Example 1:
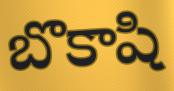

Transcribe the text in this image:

బొకాషి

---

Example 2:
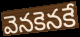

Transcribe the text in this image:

వెనకెనకే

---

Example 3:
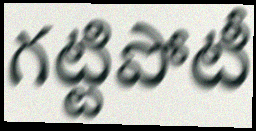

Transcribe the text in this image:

గట్టిపోటీ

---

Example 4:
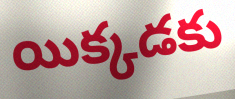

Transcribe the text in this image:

యిక్కడకు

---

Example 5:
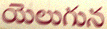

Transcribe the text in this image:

యెలుగున